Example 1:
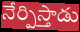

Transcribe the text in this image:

నేర్పిస్తాడు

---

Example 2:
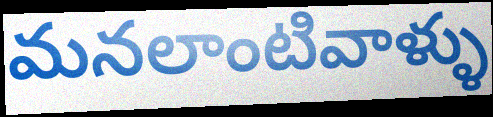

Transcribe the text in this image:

మనలాంటివాళ్ళు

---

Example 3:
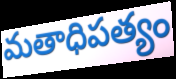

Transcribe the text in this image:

మతాధిపత్యం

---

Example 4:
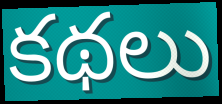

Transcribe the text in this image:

కథలు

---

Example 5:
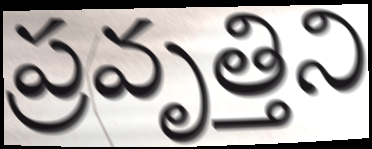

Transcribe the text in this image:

ప్రవృత్తిని